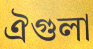
ঐগুলা